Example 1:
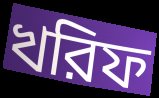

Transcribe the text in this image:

খরিফ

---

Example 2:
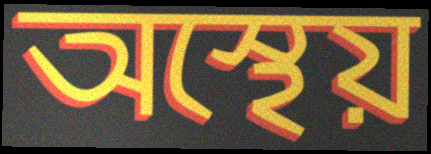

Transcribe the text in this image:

অস্থেয়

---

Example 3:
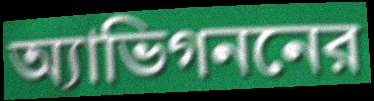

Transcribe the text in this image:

অ্যাভিগননের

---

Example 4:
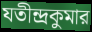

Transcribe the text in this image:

যতীন্দ্রকুমার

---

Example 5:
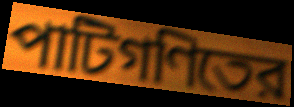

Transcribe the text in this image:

পাটিগণিতের